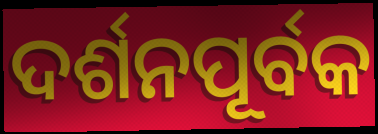
ଦର୍ଶନପୂର୍ବକ